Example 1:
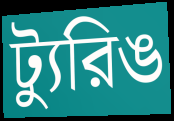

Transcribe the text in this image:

ট্যুরিঙ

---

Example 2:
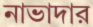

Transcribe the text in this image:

নাভাদার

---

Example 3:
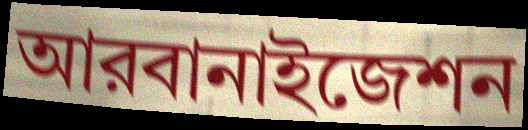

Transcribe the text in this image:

আরবানাইজেশন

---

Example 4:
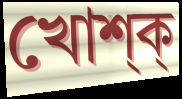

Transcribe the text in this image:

খোশ্ক্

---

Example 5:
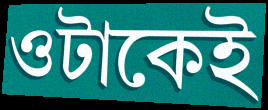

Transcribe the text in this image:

ওটাকেই